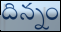
దిన్నం